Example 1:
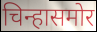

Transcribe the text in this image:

चिन्हासमोर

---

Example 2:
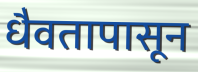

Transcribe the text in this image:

धैवतापासून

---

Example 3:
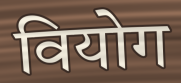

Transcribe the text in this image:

वियोग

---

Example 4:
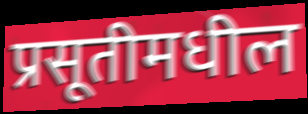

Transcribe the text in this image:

प्रसूतीमधील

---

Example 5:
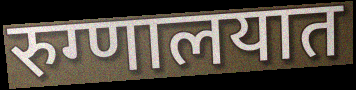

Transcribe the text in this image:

रुग्णालयात